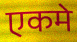
एकमे